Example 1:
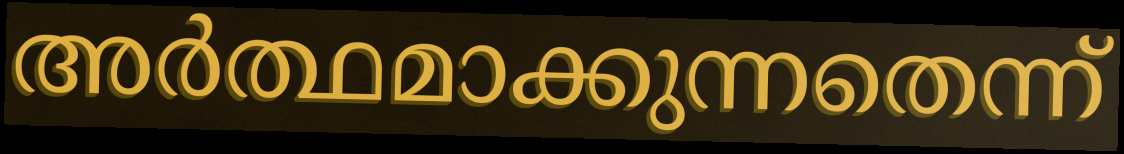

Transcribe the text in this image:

അർത്ഥമാക്കുന്നതെന്ന്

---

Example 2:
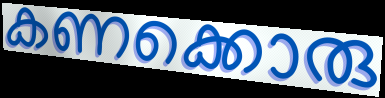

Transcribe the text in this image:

കണക്കൊരു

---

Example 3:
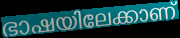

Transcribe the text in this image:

ഭാഷയിലേക്കാണ്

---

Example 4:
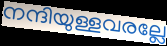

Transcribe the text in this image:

നന്ദിയുള്ളവരല്ലേ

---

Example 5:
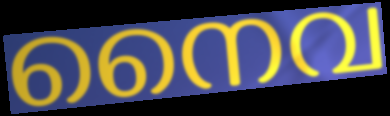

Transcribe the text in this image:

നൈവ